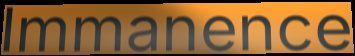
Immanence